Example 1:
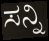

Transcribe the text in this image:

ಸನ್ನಿ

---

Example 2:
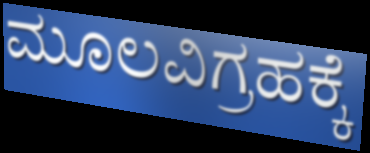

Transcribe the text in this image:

ಮೂಲವಿಗ್ರಹಕ್ಕೆ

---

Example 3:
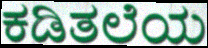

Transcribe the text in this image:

ಕಡಿತಲೆಯ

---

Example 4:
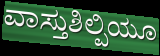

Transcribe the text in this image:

ವಾಸ್ತುಶಿಲ್ಪಿಯೂ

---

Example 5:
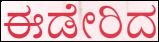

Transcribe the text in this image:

ಈಡೇರಿದ